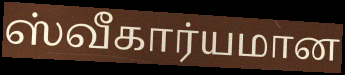
ஸ்வீகார்யமான